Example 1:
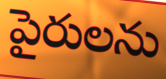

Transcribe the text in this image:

పైరులను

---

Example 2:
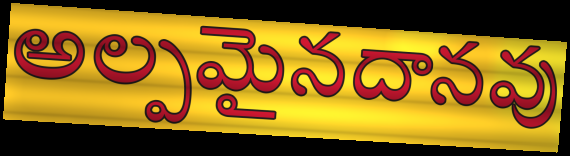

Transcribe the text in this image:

అల్పమైనదానవు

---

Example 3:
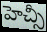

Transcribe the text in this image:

హెచ్సీ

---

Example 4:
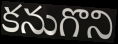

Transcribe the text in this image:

కనుగొని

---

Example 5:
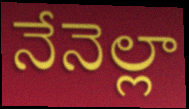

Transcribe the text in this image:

నేనెల్లా